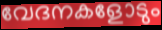
വേദനകളോടും